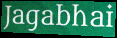
Jagabhai